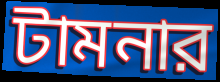
টামনার